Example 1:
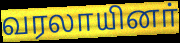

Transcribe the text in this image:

வரலாயினர்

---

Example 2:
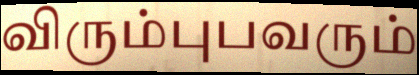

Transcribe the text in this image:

விரும்புபவரும்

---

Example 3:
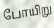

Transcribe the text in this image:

போயிறு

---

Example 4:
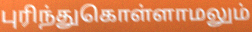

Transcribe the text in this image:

புரிந்துகொள்ளாமலும்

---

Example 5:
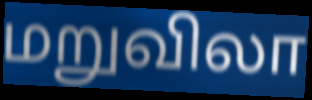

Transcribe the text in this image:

மறுவிலா